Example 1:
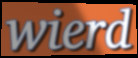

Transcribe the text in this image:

wierd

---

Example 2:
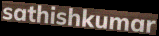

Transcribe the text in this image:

sathishkumar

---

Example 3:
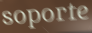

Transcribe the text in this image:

soporte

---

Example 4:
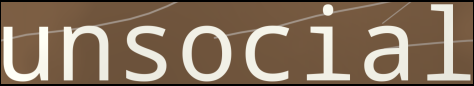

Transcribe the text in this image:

unsocial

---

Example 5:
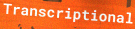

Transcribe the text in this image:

Transcriptional